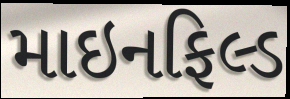
માઇનફિલ્ડ